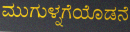
ಮುಗುಳ್ನಗೆಯೊಡನೆ